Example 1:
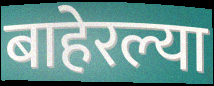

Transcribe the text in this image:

बाहेरल्या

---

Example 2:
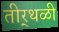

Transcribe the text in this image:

तीर्थळी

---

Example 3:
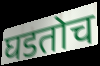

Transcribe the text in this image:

घडतोच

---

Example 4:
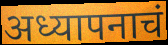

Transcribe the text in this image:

अध्यापनाचं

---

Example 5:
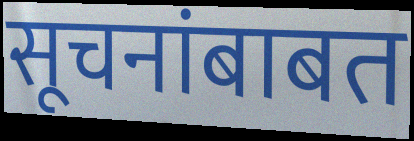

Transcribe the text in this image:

सूचनांबाबत